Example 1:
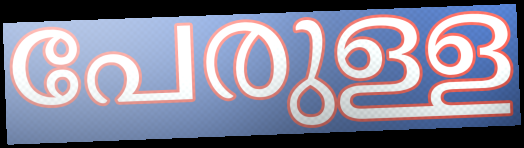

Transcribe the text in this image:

പേരുള്ള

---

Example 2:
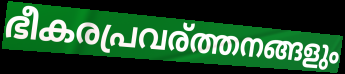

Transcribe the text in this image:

ഭീകരപ്രവര്ത്തനങ്ങളും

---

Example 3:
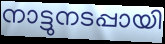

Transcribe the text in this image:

നാട്ടുനടപ്പായി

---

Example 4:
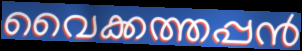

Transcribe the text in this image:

വൈക്കത്തപ്പൻ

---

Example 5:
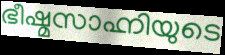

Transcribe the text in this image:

ഭീഷ്മസാഹ്നിയുടെ